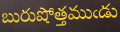
బురుషోత్తముఁడు